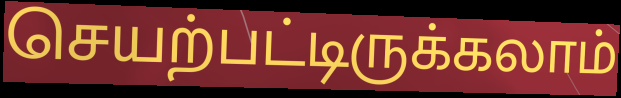
செயற்பட்டிருக்கலாம்